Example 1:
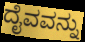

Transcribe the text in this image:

ದೈವವನ್ನು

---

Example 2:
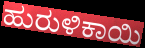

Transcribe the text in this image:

ಹುರುಳಿಕಾಯಿ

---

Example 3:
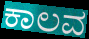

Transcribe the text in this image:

ಕಾಲವ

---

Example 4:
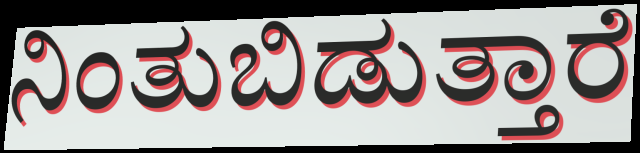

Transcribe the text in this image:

ನಿಂತುಬಿಡುತ್ತಾರೆ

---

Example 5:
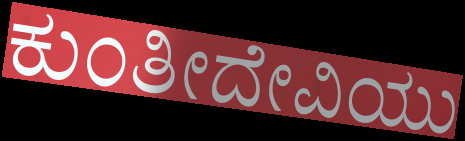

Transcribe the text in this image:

ಕುಂತೀದೇವಿಯು